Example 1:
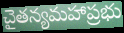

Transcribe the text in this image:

చైతన్యమహాప్రభు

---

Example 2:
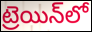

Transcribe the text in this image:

ట్రెయిన్‌లో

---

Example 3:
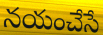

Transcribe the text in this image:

నయంచేసే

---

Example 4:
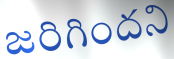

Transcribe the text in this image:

జరిగిందని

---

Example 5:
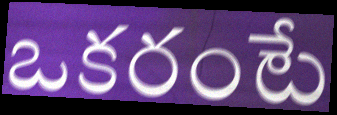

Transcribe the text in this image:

ఒకరంటే